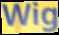
Wig